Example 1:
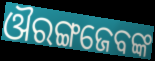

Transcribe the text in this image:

ଔରଙ୍ଗଜେବଙ୍କ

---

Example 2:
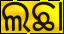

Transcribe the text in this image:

ଲଛା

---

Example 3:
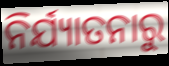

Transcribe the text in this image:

ନିର୍ଯ୍ୟାତନାରୁ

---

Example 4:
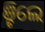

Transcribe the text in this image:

ଞ୍ଚିଲେ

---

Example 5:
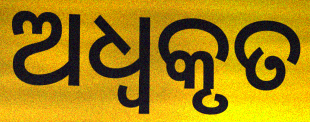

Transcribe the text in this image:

ଅଧ୍ବକୃତ